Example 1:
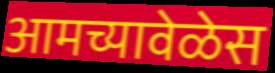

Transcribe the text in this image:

आमच्यावेळेस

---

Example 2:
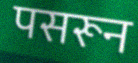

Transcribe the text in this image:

पसरून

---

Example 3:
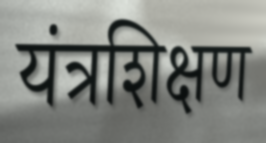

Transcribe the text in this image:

यंत्रशिक्षण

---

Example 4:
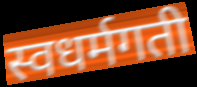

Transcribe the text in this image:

स्वधर्मगती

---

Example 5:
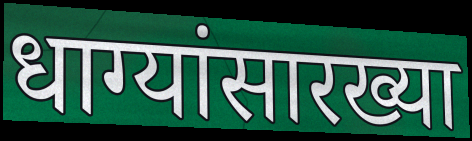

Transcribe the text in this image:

धाग्यांसारख्या